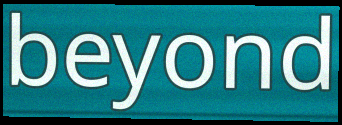
beyond